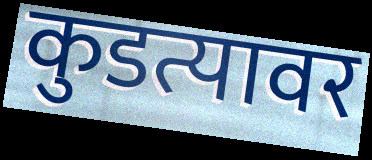
कुडत्यावर